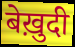
बेख़ुदी